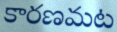
కారణమట